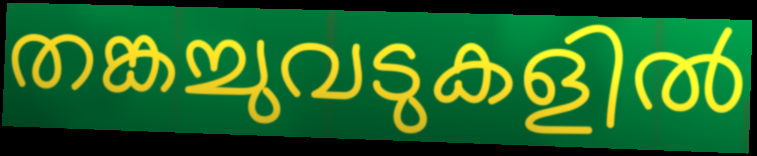
തങ്കച്ചുവടുകളിൽ